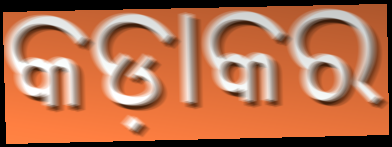
କଡ଼ାକର